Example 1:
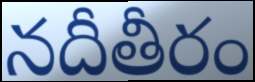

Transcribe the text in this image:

నదీతీరం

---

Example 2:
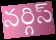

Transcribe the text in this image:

నర్గిస్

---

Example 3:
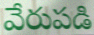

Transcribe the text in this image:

వేరుపడి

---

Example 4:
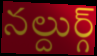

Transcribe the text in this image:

నల్దుర్గ్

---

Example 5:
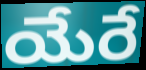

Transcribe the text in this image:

యేరే